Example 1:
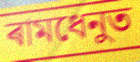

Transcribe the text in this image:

ৰামধেনুত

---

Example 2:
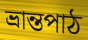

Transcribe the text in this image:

ভ্ৰান্তপাঠ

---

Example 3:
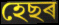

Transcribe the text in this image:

হেছৰ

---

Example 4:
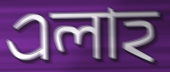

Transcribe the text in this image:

এলাহ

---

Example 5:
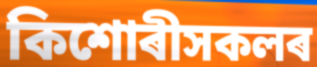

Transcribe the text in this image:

কিশোৰীসকলৰ